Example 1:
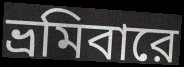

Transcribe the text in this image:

ভ্রমিবারে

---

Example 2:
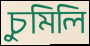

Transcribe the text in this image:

চুমিলি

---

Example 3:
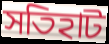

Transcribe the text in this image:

সতিহাট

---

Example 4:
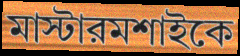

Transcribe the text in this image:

মাস্টারমশাইকে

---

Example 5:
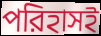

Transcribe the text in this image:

পরিহাসই